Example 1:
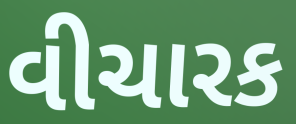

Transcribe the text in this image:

વીચારક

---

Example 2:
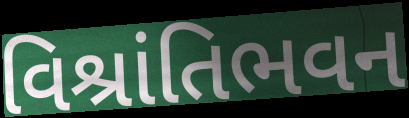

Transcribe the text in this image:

વિશ્રાંતિભવન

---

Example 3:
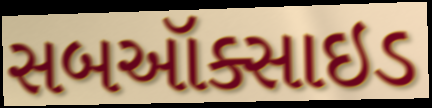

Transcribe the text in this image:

સબઑક્સાઇડ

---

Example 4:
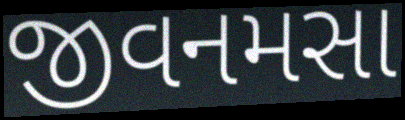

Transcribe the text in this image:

જીવનમસા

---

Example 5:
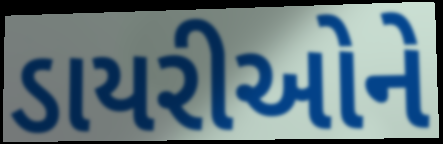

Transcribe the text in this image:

ડાયરીઓને